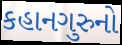
કહાનગુરુનો